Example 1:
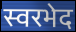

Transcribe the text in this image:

स्वरभेद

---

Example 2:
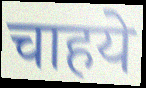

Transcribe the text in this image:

चाहये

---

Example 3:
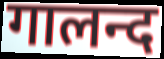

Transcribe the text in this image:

गालन्द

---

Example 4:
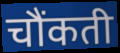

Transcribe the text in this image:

चौंकती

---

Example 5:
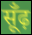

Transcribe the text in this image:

सूँढ़